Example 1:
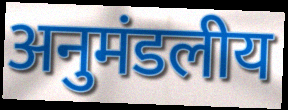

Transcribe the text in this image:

अनुमंडलीय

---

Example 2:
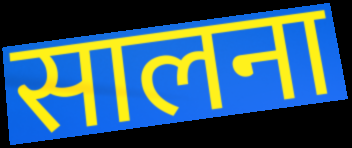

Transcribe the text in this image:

सालना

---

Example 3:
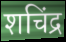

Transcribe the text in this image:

शचिंद्र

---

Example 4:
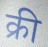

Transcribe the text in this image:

क्री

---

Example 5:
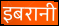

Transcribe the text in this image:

इबरानी